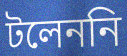
টলেননি